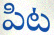
పిట